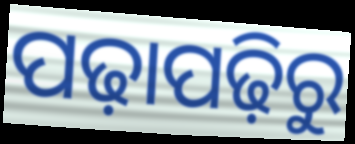
ପଢ଼ାପଢ଼ିରୁ